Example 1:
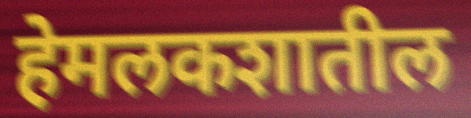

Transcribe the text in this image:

हेमलकशातील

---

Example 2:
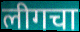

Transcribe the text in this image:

लीगचा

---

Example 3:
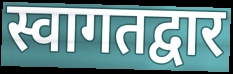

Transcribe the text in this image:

स्वागतद्वार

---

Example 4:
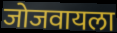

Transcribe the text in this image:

जोजवायला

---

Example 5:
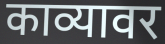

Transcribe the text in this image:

काव्यावर